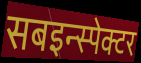
सबइन्स्पेक्टर